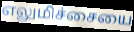
எலுமிச்சையை